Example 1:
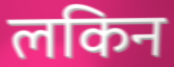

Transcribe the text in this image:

लकिन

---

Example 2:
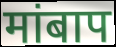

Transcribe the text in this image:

मांबाप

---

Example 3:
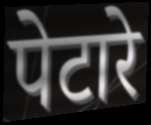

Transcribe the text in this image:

पेटारे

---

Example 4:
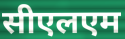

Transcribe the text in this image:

सीएलएम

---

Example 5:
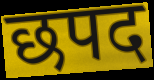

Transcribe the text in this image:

छपद